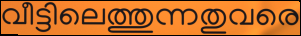
വീട്ടിലെത്തുന്നതുവരെ